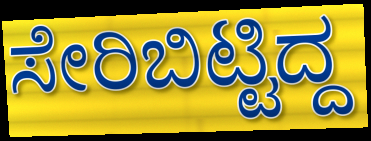
ಸೇರಿಬಿಟ್ಟಿದ್ದ